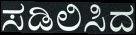
ಸಡಿಲಿಸಿದ